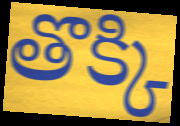
తొక్కి